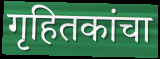
गृहितकांचा